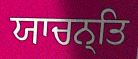
ਯਾਚਨ੍ਤਿ